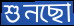
শুনছো